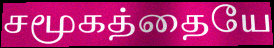
சமூகத்தையே